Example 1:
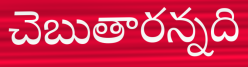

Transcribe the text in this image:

చెబుతారన్నది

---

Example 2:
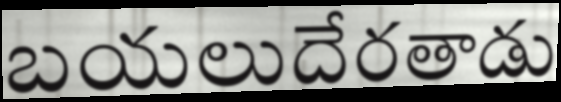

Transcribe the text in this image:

బయలుదేరతాడు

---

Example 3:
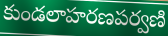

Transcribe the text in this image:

కుండలాహరణపర్వణి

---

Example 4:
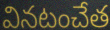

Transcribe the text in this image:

వినటంచేత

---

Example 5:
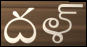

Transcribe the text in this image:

దళ్